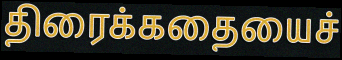
திரைக்கதையைச்